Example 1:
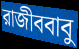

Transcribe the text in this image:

রাজীববাবু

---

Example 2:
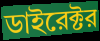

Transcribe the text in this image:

ডাইরেক্টর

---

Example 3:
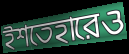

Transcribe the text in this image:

ইশতেহারেও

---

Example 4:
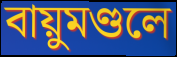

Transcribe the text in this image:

বায়ুমণ্ডলে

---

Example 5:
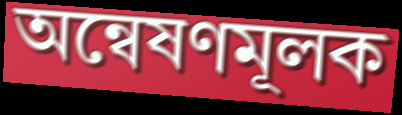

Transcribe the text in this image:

অন্বেষণমূলক